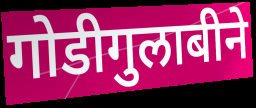
गोडीगुलाबीने